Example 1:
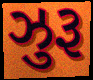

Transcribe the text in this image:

ઝુરૂ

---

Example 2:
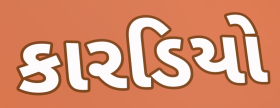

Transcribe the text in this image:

કારડિયો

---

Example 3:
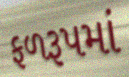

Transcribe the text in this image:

ફળરૂપમાં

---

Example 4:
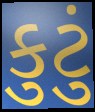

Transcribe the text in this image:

કુટું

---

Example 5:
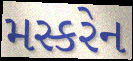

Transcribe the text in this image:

મસ્કરેન